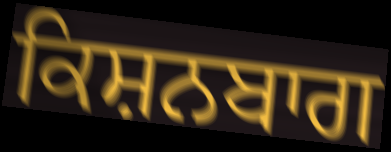
ਕਿਸ਼ਨਬਾਗ